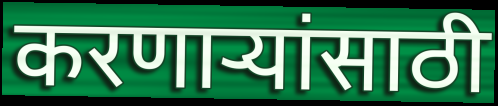
करणार्‍यांसाठी